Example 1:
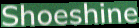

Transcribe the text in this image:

Shoeshine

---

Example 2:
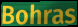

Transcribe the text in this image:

Bohras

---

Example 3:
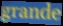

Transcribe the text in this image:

grande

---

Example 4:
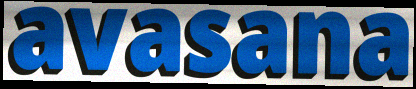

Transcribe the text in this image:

avasana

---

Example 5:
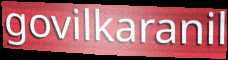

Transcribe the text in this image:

govilkaranil